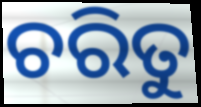
ଚରିତୁ